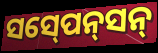
ସସ୍‍ପେନ୍‍ସନ୍